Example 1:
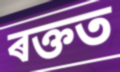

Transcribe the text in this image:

ৰক্তত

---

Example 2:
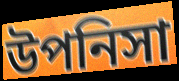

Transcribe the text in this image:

উপনিসা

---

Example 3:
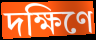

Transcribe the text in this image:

দক্ষিণে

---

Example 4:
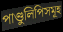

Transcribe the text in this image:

পাণ্ডুলিপিসমূহ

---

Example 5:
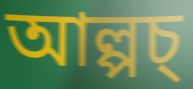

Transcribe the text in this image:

আল্পচ্